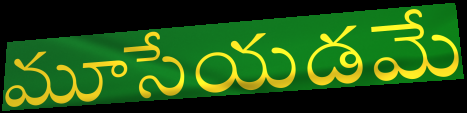
మూసేయడమే